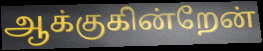
ஆக்குகின்றேன்